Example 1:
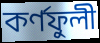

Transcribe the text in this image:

কর্ণফুলী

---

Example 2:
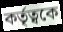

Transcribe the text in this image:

কর্তৃত্বকে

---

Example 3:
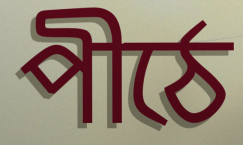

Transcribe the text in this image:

পীঠে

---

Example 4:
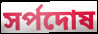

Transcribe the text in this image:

সর্পদোষ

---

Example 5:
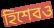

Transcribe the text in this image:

হিশেবও